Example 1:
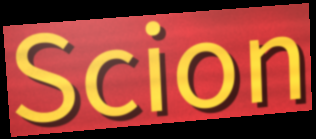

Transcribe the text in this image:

Scion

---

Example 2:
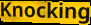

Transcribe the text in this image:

Knocking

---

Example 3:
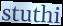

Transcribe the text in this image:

stuthi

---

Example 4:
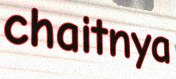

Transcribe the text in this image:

chaitnya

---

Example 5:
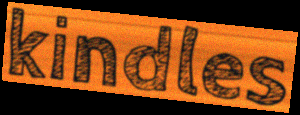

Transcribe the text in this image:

kindles